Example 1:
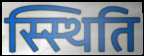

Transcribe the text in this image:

स्स्थिति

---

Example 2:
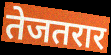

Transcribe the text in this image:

तेजतरार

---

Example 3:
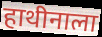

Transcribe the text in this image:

हाथीनाला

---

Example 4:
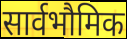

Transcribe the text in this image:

सार्वभौमिक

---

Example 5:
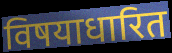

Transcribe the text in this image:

विषयाधारित